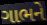
ગાભને